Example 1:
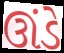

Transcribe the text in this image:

ઊંડે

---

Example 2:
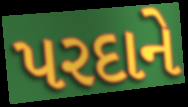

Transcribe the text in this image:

પરદાને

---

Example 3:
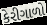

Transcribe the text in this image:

કેરીગાળો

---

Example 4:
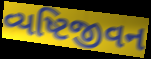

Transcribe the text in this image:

વ્યષ્ટિજીવન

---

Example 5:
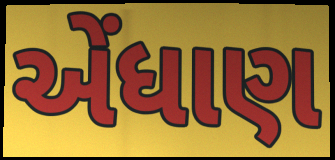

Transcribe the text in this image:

એંધાણ